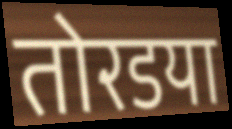
तोरडया